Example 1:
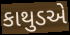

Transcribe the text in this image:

કાથુડએ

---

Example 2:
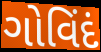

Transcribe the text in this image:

ગોવિંદં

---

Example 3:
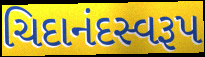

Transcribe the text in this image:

ચિદાનંદસ્વરૂપ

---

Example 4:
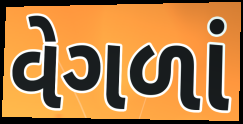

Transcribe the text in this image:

વેગળાં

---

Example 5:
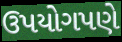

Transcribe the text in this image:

ઉપયોગપણે